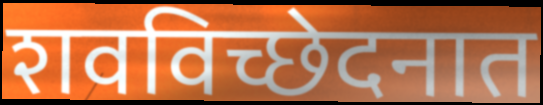
शवविच्छेदनात